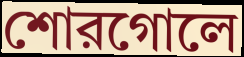
শোরগোলে